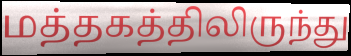
மத்தகத்திலிருந்து